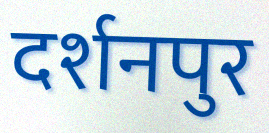
दर्शनपुर